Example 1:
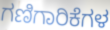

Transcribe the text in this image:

ಗಣಿಗಾರಿಕೆಗಳ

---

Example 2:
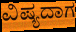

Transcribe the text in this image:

ವಿಷ್ಯದಾಗ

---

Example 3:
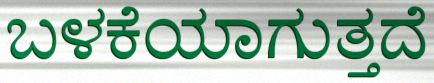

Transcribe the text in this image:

ಬಳಕೆಯಾಗುತ್ತದೆ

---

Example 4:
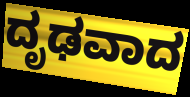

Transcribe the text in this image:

ದೃಢವಾದ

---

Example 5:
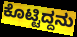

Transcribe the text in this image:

ಕೊಟ್ಟಿದ್ದನು